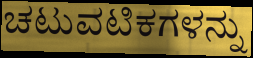
ಚಟುವಟಿಕಗಳನ್ನು